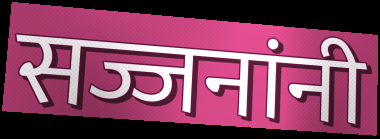
सज्जनांनी